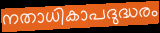
നതാധികാപദുദ്ധരം